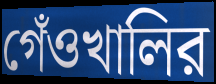
গেঁওখালির